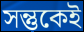
সন্তুকেই